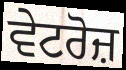
ਵੇਟਰੋਜ਼